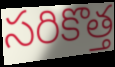
సరికొత్త